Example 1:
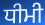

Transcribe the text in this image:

ਧੀਮੀ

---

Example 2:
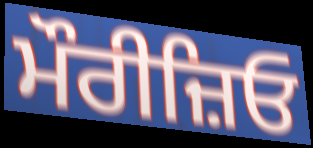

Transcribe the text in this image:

ਮੌਰੀਜ਼ਿਓ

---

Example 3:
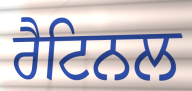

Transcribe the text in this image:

ਰੈਟਿਨਲ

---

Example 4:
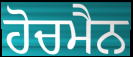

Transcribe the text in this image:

ਹੋਚਮੈਨ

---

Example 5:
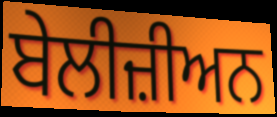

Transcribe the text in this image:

ਬੇਲੀਜ਼ੀਅਨ